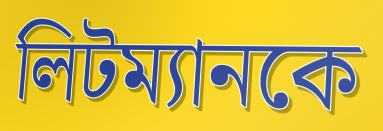
লিটম্যানকে